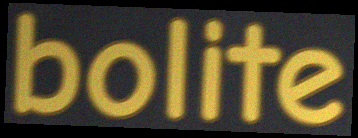
bolite